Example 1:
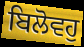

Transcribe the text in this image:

ਬਿਲੋਵਹੁ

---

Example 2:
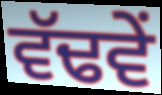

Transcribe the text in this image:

ਵੱਢਵੇਂ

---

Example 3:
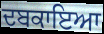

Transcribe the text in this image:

ਦਬਕਾਇਆ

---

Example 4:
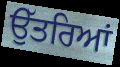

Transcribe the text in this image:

ਉੱਤਰਿਆਂ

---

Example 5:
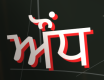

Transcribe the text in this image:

ਔਂਧ